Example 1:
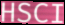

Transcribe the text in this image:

HSCI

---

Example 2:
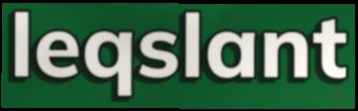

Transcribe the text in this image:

leqslant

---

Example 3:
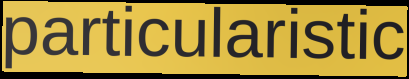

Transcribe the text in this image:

particularistic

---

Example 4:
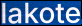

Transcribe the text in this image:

lakote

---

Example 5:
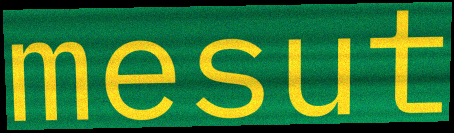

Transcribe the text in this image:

mesut